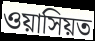
ওয়াসিয়ত